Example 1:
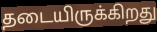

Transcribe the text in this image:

தடையிருக்கிறது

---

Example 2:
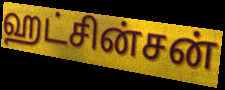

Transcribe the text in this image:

ஹட்சின்சன்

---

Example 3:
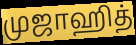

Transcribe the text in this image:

முஜாஹித்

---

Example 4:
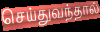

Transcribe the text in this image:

செய்துவந்தால்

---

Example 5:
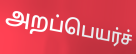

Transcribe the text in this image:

அறப்பெயர்ச்